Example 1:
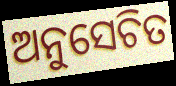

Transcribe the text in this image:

ଅନୁସେଚିତ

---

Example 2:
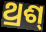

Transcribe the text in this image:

ଥ୍ରଶ୍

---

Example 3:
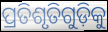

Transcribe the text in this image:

ପ୍ରତିଶୃତିଗୁଡ଼ିକୁ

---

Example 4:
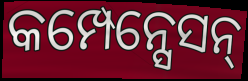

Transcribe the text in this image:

କମ୍ପେନ୍ସେସନ୍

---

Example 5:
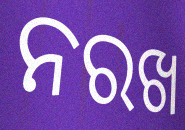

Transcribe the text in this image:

ନରଖ